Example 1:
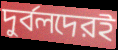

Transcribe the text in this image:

দুর্বলদেরই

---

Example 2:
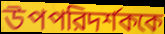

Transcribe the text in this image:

উপপরিদর্শককে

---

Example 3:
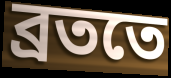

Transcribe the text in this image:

ব্রততে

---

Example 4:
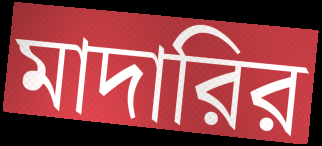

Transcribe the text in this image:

মাদারির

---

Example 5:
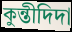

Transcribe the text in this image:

কুন্তীদিদা